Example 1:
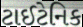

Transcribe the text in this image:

ટાઈટેનિક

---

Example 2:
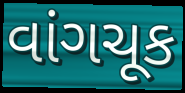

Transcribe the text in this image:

વાંગચૂક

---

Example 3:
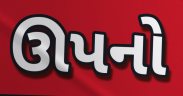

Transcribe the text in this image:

ઊપનો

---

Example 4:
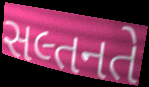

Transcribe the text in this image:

સલ્તનતે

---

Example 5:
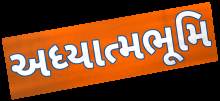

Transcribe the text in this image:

અધ્યાત્મભૂમિ